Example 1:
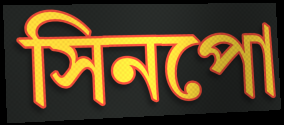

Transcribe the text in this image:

সিনপো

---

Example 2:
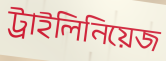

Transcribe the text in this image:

ট্রাইলিনিয়েজ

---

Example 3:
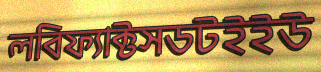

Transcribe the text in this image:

লবিফ্যাক্টসডটইইউ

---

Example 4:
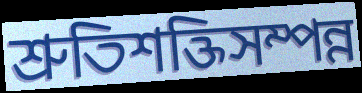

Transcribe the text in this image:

শ্রুতিশক্তিসম্পন্ন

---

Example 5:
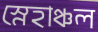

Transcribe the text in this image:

স্নেহাঞ্চল